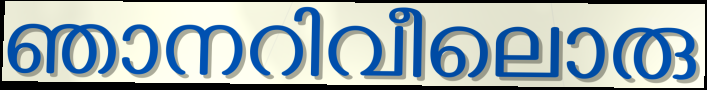
ഞാനറിവീലൊരു